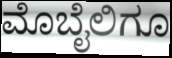
ಮೊಬೈಲಿಗೂ